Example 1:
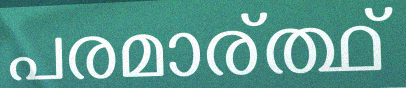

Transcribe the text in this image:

പരമാര്ത്ഥ്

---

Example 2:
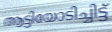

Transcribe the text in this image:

ആട്ടിയോടിച്ചിട്ട്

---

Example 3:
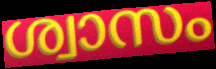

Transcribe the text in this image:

ശ്വാസം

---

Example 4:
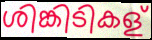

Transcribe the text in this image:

ശിങ്കിടികള്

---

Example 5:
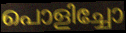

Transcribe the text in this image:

പൊളിച്ചോ